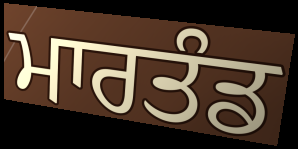
ਮਾਰਤੰਡ